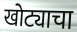
खोट्याचा